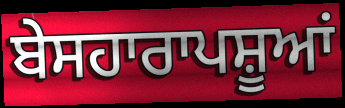
ਬੇਸਹਾਰਾਪਸ਼ੂਆਂ